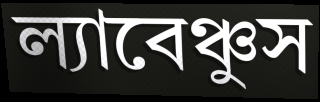
ল্যাবেঞ্চুস